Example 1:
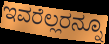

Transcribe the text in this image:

ಇವರೆಲ್ಲರನ್ನೂ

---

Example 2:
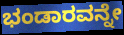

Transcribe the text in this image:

ಭಂಡಾರವನ್ನೇ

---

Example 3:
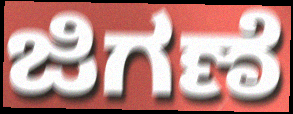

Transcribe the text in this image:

ಜಿಗಣೆ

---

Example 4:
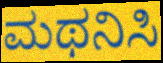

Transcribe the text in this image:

ಮಥನಿಸಿ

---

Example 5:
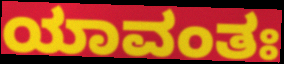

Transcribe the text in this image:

ಯಾವಂತಃ